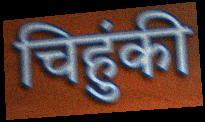
चिहुंकी